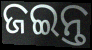
ଜଇନ୍ତ